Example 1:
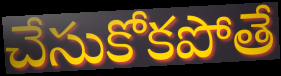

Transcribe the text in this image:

చేసుకోకపోతే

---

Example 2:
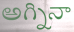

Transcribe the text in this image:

అగ్నినా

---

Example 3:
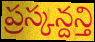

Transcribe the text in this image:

ప్రస్కన్దన్తి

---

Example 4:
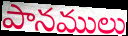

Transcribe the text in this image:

పానములు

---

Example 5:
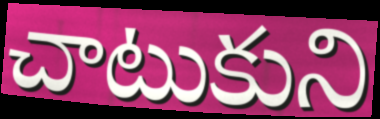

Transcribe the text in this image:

చాటుకుని